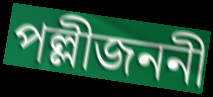
পল্লীজননী